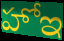
హోఇ